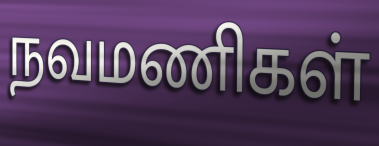
நவமணிகள்